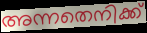
അന്നതെനിക്ക്